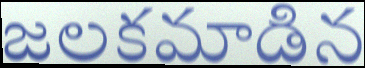
జలకమాడిన